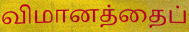
விமானத்தைப்